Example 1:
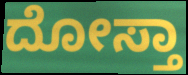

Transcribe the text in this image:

ದೋಸ್ತಾ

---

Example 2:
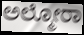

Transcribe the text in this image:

ಅಲ್ಮೋರಾ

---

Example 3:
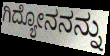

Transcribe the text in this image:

ಗಿದ್ಯೋನನನ್ನು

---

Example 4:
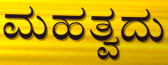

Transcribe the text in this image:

ಮಹತ್ವದು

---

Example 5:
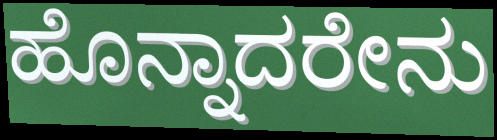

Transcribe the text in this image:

ಹೊನ್ನಾದರೇನು